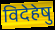
विदेहेषु